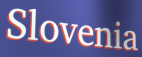
Slovenia